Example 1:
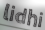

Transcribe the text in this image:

lidhi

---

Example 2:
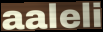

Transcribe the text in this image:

aaleli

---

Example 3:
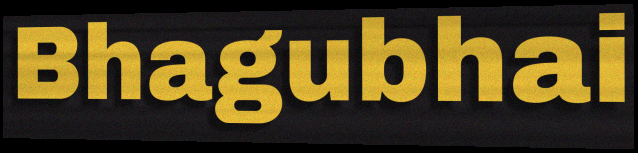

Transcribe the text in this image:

Bhagubhai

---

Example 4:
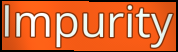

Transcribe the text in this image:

Impurity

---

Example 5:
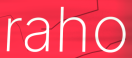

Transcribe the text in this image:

raho